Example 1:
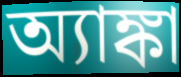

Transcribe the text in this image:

অ্যাঙ্কা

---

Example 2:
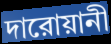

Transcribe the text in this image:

দারোয়ানী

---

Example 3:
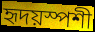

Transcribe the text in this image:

হৃদয়স্পশী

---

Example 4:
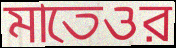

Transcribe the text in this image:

মাতেওর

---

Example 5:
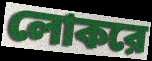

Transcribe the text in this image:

লোকরে